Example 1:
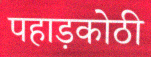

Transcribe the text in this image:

पहाड़कोठी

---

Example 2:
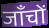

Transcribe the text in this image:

जाँचों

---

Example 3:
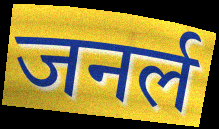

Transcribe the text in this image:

जनर्ल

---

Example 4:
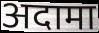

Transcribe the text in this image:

अदामा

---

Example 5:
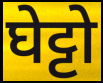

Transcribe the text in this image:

घेट्टो